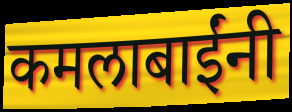
कमलाबाईंनी